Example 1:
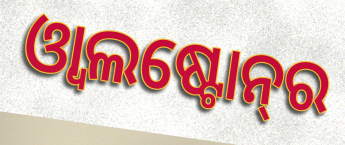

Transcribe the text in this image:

ଓ୍ୱାଲଷ୍ଟୋନ୍‌ର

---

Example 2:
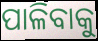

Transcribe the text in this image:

ପାଳିବାକୁ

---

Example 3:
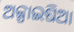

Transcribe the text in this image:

ଅଳ୍ପାଇଷିଆ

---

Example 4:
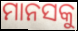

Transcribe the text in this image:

ମାନସକୁ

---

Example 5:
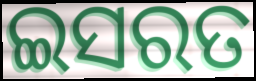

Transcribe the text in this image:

ଇସରତ